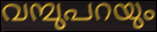
വമ്പുപറയും